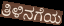
ತಿಳಿನಗೆಯ